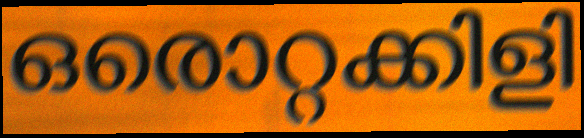
ഒരൊറ്റക്കിളി